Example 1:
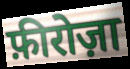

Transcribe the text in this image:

फ़ीरोज़ा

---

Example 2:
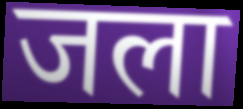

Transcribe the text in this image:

जला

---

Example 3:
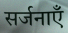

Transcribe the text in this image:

सर्जनाएँ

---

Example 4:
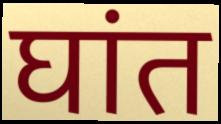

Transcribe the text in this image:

घांत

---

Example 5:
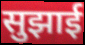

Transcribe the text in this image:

सुझाई